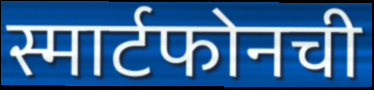
स्मार्टफोनची